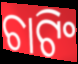
ଚାଟିଂ